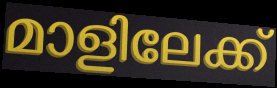
മാളിലേക്ക്